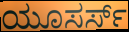
ಯೂಸರ್ಸ್